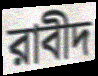
রাবীদ